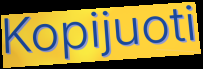
Kopijuoti